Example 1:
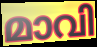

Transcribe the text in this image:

മാവി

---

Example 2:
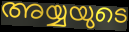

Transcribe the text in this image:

അയ്യയുടെ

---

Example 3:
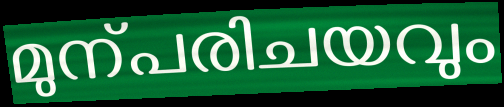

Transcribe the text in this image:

മുന്പരിചയവും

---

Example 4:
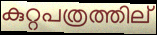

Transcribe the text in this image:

കുറ്റപത്രത്തില്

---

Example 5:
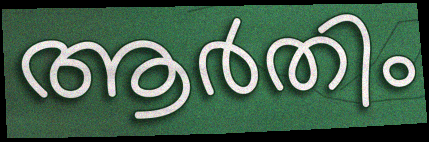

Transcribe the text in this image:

ആർതിം